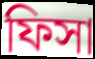
ফিসা